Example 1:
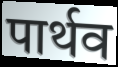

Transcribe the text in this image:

पार्थव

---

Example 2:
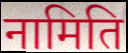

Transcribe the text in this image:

नामिति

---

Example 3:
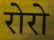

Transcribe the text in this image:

रोरो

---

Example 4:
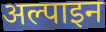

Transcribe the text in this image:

अल्पाइन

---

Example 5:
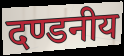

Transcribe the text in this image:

दण्डनीय